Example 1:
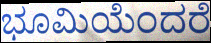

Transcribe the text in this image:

ಭೂಮಿಯೆಂದರೆ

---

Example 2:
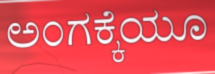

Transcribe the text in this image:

ಅಂಗಕ್ಕೆಯೂ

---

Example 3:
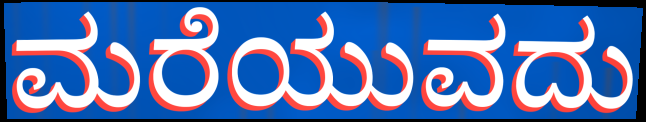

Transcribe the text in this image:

ಮರೆಯುವದು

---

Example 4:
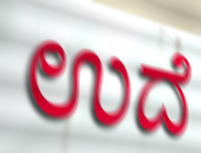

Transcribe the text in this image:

ಉದೆ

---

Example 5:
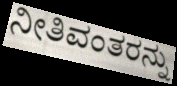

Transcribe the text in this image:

ನೀತಿವಂತರನ್ನು